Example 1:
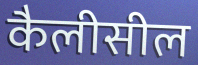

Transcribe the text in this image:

कैलीसील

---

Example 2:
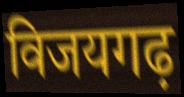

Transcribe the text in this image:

विजयगढ़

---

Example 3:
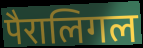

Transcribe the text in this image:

पैरालिगल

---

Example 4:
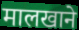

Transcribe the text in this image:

मालखाने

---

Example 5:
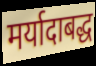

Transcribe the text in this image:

मर्यादाबद्ध